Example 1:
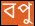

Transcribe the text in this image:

বপু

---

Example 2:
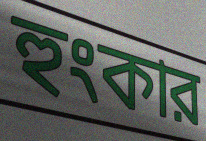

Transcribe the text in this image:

হুংকার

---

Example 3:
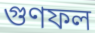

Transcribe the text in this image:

গুণফল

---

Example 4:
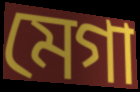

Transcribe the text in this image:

মেগা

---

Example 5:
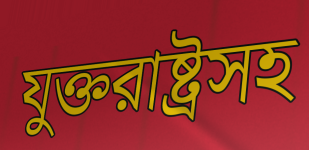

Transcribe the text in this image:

যুক্তরাষ্ট্রসহ